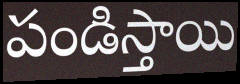
పండిస్తాయి